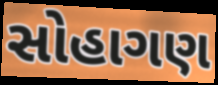
સોહાગણ